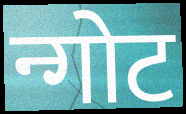
न्गोट